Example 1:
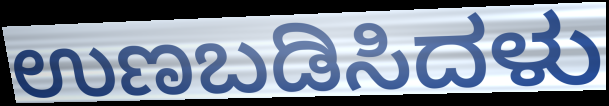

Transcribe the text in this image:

ಉಣಬಡಿಸಿದಳು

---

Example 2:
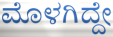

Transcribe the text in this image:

ಮೊಳಗಿದ್ದೇ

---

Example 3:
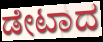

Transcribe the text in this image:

ಡೇಟಾದ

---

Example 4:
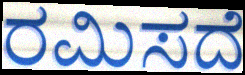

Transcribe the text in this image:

ರಮಿಸದೆ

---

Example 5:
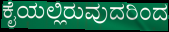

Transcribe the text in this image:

ಕೈಯಲ್ಲಿರುವುದರಿಂದ